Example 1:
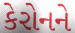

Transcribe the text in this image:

કેરોનને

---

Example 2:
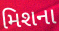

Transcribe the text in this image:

મિશના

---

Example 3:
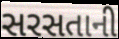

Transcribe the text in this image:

સરસતાની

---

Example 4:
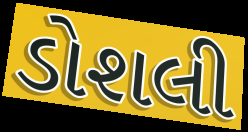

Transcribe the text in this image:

ડોશલી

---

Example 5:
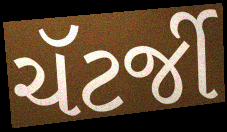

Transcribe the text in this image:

ચૅટર્જી